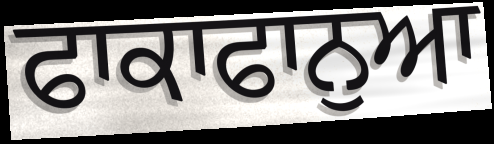
ਫਾਕਾਫਾਨੁਆ